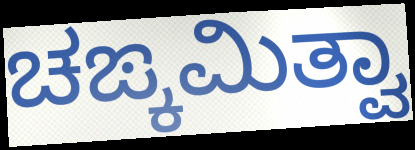
ಚಙ್ಕಮಿತ್ವಾ